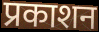
प्रकाशन